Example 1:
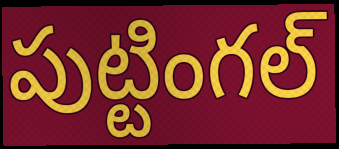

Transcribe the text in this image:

పుట్టింగల్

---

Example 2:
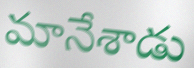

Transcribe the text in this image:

మానేశాడు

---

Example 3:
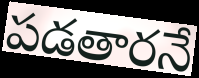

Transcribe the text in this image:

పడతారనే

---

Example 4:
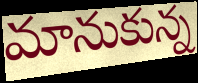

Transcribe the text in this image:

మానుకున్న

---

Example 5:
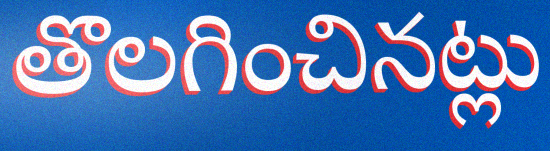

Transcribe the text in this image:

తొలగించినట్లు